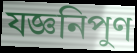
যজ্ঞনিপুণ